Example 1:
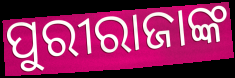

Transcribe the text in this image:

ପୁରୀରାଜାଙ୍କ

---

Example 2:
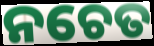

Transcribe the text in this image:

ନଚେତ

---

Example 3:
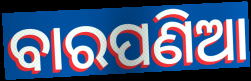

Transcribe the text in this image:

ବାରପଣିଆ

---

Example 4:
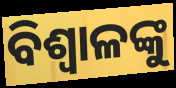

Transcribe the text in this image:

ବିଶ୍ୱାଳଙ୍କୁ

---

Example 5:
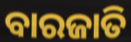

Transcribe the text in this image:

ବାରଜାତି